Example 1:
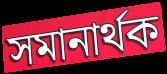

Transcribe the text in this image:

সমানার্থক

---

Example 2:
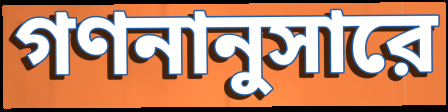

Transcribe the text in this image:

গণনানুসারে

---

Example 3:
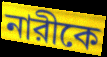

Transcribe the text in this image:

নারীকে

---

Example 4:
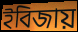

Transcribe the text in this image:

ইবিজায়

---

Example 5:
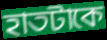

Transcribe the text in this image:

হাতটাকে